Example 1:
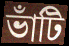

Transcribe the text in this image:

ভাঁটি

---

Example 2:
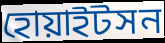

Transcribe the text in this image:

হোয়াইটসন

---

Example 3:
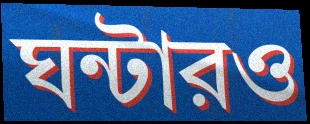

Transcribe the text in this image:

ঘন্টারও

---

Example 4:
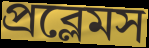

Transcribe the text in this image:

প্রব্লেমস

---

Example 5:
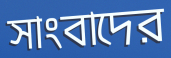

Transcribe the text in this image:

সাংবাদের